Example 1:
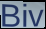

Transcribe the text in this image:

Biv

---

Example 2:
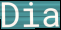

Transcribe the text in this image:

Dia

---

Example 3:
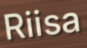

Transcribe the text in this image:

Riisa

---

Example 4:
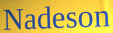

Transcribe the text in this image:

Nadeson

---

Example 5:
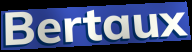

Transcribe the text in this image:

Bertaux